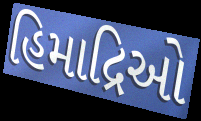
હિમાદ્રિઓ